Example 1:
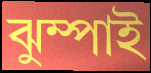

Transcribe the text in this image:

ঝুম্পাই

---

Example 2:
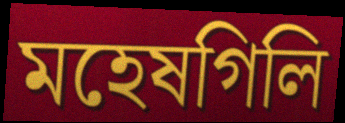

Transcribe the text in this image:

মহেষগিলি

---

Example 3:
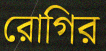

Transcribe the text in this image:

রোগির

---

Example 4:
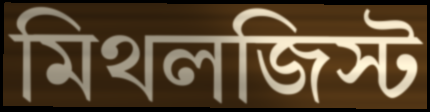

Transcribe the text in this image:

মিথলজিস্ট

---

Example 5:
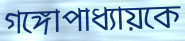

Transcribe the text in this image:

গঙ্গোপাধ্যায়কে